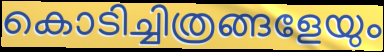
കൊടിച്ചിത്രങ്ങളേയും